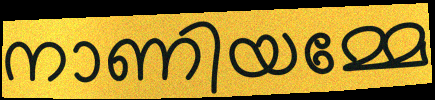
നാണിയമ്മേ